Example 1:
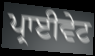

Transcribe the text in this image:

ਪ੍ਰਾਈਵੇਟ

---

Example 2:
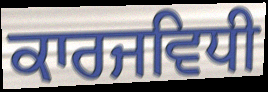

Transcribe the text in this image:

ਕਾਰਜਵਿਧੀ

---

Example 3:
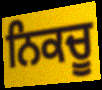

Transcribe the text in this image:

ਨਿਕਚੂ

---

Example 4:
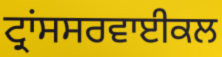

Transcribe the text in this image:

ਟ੍ਰਾਂਸਸਰਵਾਈਕਲ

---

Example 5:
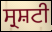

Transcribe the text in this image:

ਸ੍ਰਸ਼ਟੀ